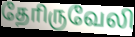
தேரிருவேலி